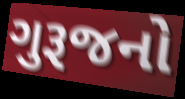
ગુરૂજનો